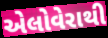
એલોવેરાથી